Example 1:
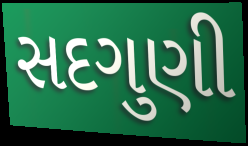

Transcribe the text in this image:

સદગુણી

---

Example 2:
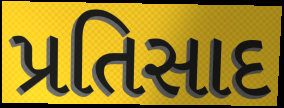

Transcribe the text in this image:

પ્રતિસાદ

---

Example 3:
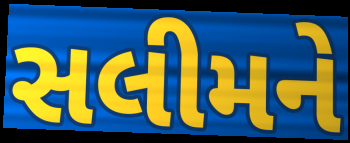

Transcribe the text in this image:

સલીમને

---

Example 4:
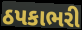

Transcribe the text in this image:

ઠપકાભરી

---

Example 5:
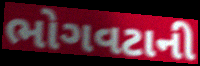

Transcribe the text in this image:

ભોગવટાની